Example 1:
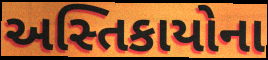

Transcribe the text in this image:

અસ્તિકાયોના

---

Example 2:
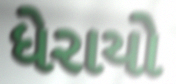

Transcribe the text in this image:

ધેરાયો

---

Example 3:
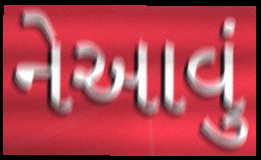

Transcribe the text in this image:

નેઆવું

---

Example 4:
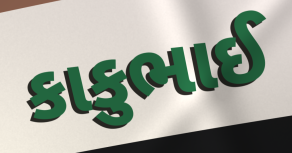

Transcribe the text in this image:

કાકુભાઈ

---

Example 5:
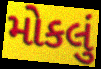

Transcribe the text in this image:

મોકલું